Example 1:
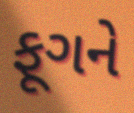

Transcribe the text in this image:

ફૂગને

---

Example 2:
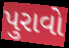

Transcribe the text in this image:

પુરાવો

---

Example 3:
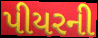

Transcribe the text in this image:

પીયરની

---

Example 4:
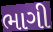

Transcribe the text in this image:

ભાગી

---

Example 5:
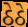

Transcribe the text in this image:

ઠેઠે